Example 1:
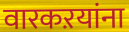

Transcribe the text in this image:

वारकऱयांना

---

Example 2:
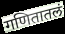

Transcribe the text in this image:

गणितातलं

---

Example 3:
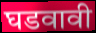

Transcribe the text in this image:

घडवावी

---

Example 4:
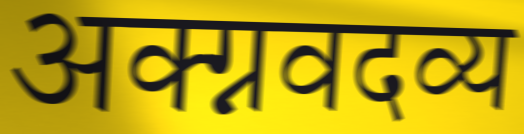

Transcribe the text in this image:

अक्ग्नवदव्य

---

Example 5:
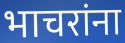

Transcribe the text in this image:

भाचरांना